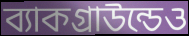
ব্যাকগ্রাউন্ডেও